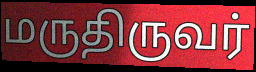
மருதிருவர்